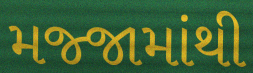
મજ્જામાંથી